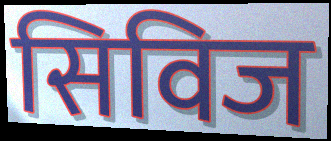
सिविज